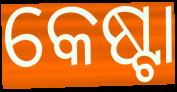
କେଷ୍ଟା